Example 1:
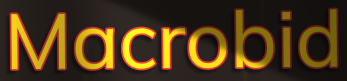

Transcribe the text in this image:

Macrobid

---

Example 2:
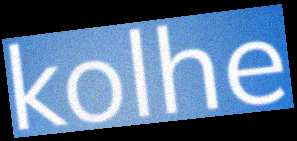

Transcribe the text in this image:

kolhe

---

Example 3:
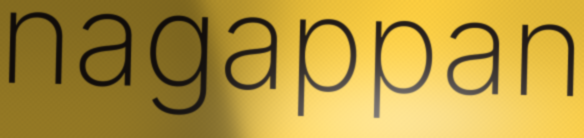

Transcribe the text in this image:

nagappan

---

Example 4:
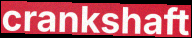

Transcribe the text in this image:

crankshaft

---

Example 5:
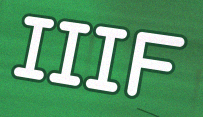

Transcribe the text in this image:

IIIF